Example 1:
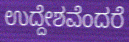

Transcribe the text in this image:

ಉದ್ದೇಶವೆಂದರೆ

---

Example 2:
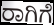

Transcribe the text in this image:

ರಾಗಿಗೆ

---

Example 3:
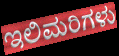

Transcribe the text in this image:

ಇಲಿಮರಿಗಳು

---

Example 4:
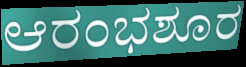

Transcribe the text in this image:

ಆರಂಭಶೂರ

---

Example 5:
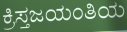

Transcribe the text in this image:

ಕ್ರಿಸ್ತಜಯಂತಿಯ